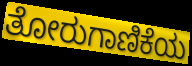
ತೋರುಗಾಣಿಕೆಯ